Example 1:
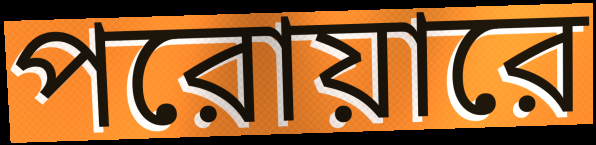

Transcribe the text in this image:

পরোয়ারে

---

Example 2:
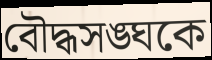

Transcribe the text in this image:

বৌদ্ধসঙ্ঘকে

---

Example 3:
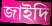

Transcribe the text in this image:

জাইদি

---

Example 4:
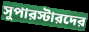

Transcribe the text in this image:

সুপারস্টারদের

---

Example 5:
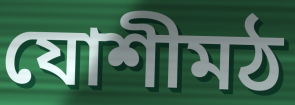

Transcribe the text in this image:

যোশীমঠ